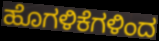
ಹೊಗಳಿಕೆಗಳಿಂದ